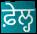
ਫ਼ੇਲ੍ਹ